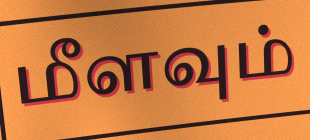
மீளவும்